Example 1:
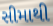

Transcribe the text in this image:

સીમાથી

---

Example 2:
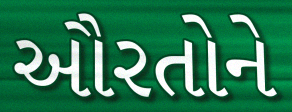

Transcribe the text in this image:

ઔરતોને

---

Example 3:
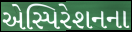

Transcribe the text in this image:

એસ્પિરેશનના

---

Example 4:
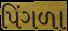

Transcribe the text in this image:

પિંગળા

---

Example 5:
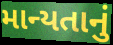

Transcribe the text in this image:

માન્યતાનું